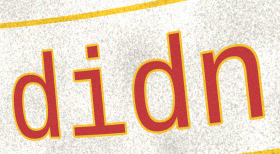
didn